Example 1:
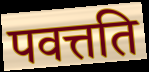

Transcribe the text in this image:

पवत्तति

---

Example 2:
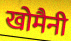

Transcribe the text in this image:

खोमैनी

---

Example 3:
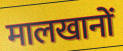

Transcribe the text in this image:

मालखानों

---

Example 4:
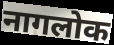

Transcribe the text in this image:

नागलोक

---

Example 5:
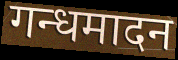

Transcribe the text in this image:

गन्धमादन